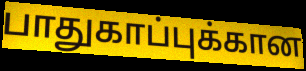
பாதுகாப்புக்கான